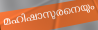
മഹിഷാസുരനെയും